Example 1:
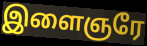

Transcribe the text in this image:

இளைஞரே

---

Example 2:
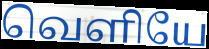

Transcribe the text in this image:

வெளியே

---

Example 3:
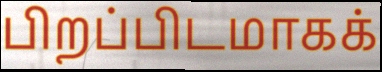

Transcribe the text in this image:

பிறப்பிடமாகக்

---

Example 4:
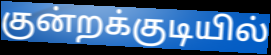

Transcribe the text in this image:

குன்றக்குடியில்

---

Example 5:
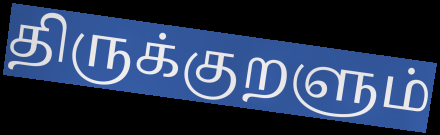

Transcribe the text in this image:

திருக்குறளும்